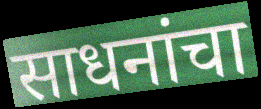
साधनांचा